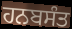
ਹਨਬਸੰਤ